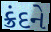
ક્રંદને